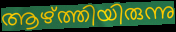
ആഴ്ത്തിയിരുന്നു